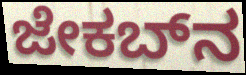
ಜೇಕಬ್‌ನ